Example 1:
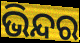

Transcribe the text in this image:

ଭିନ୍ଦର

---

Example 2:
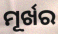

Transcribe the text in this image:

ମୂର୍ଖର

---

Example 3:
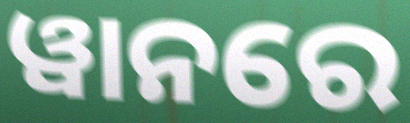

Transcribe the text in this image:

ୱାନରେ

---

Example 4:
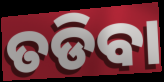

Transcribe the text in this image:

ତଡିବା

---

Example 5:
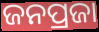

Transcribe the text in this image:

ଜନପ୍ରଜା